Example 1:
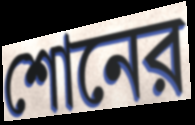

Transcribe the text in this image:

শোনের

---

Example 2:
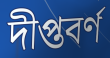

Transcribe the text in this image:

দীপ্তবর্ণ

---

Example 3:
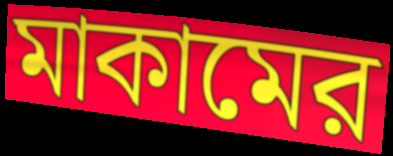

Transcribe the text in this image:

মাকামের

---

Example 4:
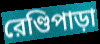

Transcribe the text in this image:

রেণ্ডিপাড়া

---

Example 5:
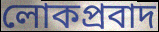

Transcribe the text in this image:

লোকপ্রবাদ